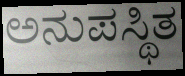
ಅನುಪಸ್ಥಿತ